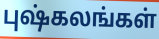
புஷ்கலங்கள்